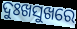
ଦୁଃଖସୁଖରେ